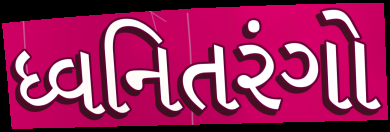
ધ્વનિતરંગો